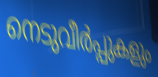
നെടുവീർപ്പുകളും